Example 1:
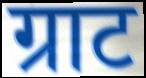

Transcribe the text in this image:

ग्राट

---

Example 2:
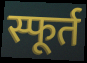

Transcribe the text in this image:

स्‍फूर्त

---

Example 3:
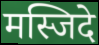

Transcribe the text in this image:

मस्जिदे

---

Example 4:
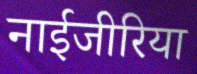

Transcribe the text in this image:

नाईजीरिया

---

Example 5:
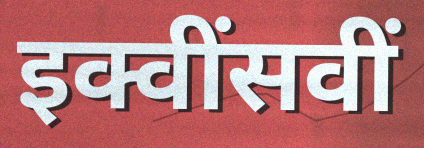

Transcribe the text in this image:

इक्वींसवीं